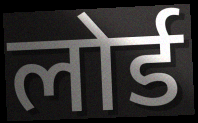
लोर्ड